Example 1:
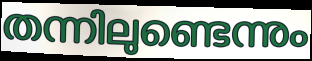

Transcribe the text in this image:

തന്നിലുണ്ടെന്നും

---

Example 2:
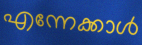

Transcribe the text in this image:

എന്നേക്കാൾ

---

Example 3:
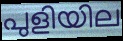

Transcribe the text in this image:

പുളിയില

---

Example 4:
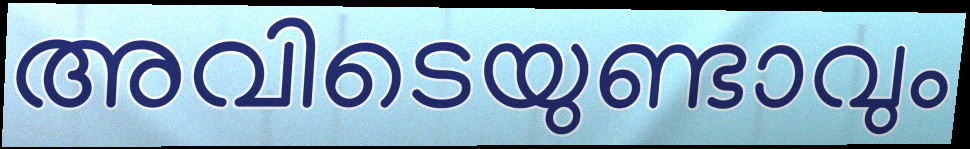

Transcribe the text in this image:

അവിടെയുണ്ടാവും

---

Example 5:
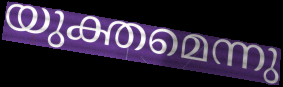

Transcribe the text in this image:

യുക്തമെന്നു